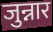
जुन्नार